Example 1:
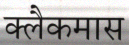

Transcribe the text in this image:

क्लैकमास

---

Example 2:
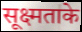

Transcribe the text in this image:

सूक्ष्मताके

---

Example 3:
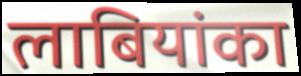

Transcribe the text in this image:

लाबियांका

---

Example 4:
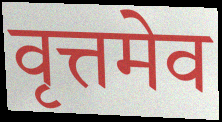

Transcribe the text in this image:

वृत्तमेव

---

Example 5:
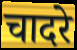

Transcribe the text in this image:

चादरे